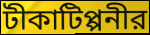
টীকাটিপ্পনীর